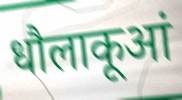
धौलाकूआं